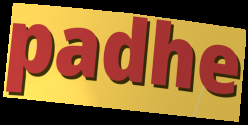
padhe